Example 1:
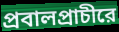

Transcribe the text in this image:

প্রবালপ্রাচীরে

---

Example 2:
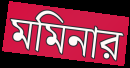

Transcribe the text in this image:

মমিনার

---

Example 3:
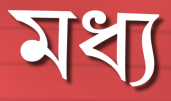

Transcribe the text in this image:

মধ্য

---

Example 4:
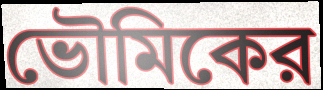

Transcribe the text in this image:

ভৌমিকের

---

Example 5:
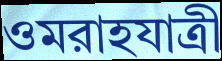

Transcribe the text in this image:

ওমরাহযাত্রী